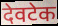
देवटेक